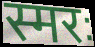
स्मरः